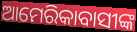
ଆମେରିକାବାସୀଙ୍କ